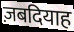
ज़बदियाह